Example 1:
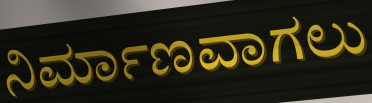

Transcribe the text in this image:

ನಿರ್ಮಾಣವಾಗಲು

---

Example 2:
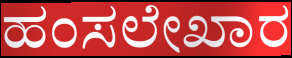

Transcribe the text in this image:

ಹಂಸಲೇಖಾರ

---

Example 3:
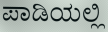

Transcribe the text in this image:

ಪಾಡಿಯಲ್ಲಿ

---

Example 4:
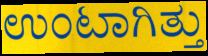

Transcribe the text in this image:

ಉಂಟಾಗಿತ್ತು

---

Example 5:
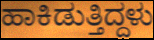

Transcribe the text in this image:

ಹಾಕಿಡುತ್ತಿದ್ದಳು